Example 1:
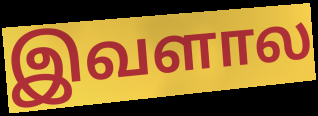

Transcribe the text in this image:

இவளால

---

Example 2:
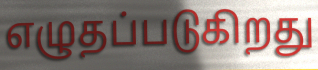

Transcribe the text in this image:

எழுதப்படுகிறது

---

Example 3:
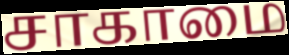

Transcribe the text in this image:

சாகாமை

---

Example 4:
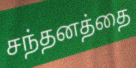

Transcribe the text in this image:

சந்தனத்தை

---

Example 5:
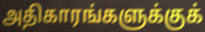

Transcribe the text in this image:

அதிகாரங்களுக்குக்